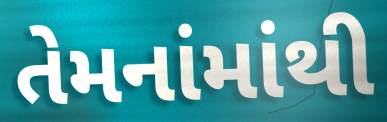
તેમનાંમાંથી